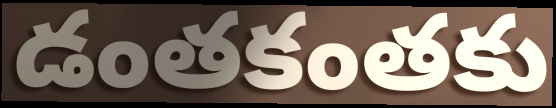
డంతకంతకు